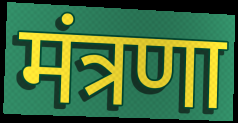
मंत्रणा